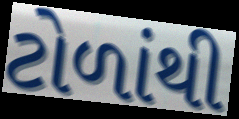
ટોળાંથી